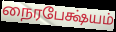
நைரபேக்ஷ்யம்